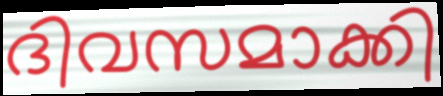
ദിവസമാക്കി